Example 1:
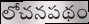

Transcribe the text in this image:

లోచనపథం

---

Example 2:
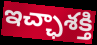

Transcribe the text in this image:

ఇచ్ఛాశక్తి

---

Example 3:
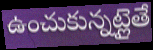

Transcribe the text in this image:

ఉంచుకున్నట్లైతే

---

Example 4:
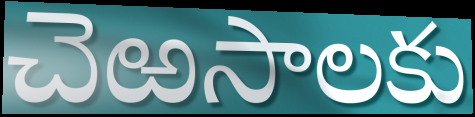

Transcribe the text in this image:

చెఱసాలకు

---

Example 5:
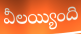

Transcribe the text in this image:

వీలయ్యింది